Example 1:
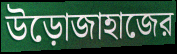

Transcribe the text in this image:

উড়োজাহাজের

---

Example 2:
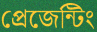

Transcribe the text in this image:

প্রেজেন্টিং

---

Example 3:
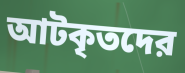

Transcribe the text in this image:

আটকৃতদের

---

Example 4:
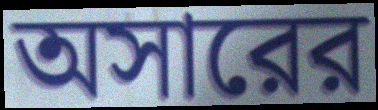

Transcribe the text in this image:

অসারের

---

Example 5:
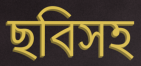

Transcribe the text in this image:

ছবিসহ